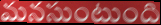
మనసుంటుంది